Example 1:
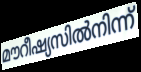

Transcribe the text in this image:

മൗറീഷ്യസിൽനിന്ന്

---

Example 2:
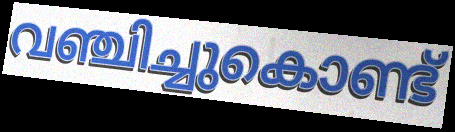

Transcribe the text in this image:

വഞ്ചിച്ചുകൊണ്ട്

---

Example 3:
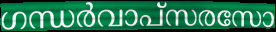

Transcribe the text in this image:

ഗന്ധർവാപ്സരസോ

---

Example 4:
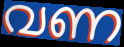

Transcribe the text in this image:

വണ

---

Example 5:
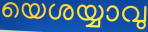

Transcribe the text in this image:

യെശയ്യാവു